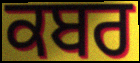
ਕਬਰ